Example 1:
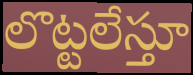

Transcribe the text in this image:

లొట్టలేస్తూ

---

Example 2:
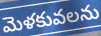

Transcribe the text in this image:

మెళకువలను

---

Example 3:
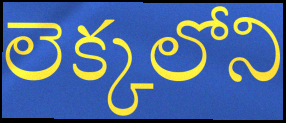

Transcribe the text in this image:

లెక్కలోని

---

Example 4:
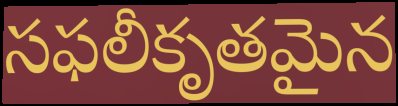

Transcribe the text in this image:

సఫలీకృతమైన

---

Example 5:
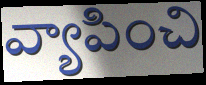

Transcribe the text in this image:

వ్యాపించి